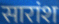
सारांश